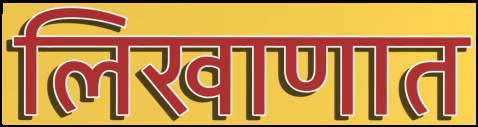
लिखाणात